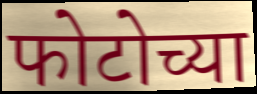
फोटोच्या